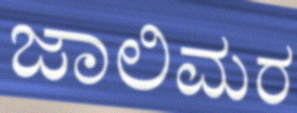
ಜಾಲಿಮರ